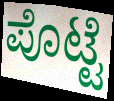
ಪೊಟ್ಟೆ